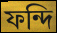
ফন্দি